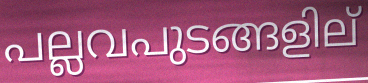
പല്ലവപുടങ്ങളില്